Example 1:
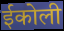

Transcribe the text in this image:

ईकोली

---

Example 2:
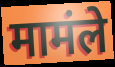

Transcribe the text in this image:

मामंले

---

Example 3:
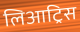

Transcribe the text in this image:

लिआट्रिस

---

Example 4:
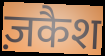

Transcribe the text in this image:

ज़कैश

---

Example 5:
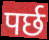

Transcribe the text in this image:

पर्छ